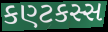
કણ્ટકસ્સ